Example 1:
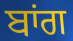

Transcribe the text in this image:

ਬਾਂਗ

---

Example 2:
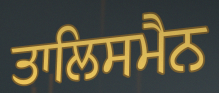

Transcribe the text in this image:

ਤਾਲਿਸਮੈਨ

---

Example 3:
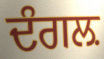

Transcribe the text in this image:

ਦੰਗਲ਼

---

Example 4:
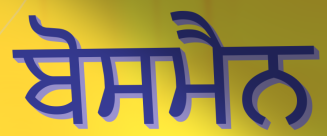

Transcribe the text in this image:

ਬੋਸਮੈਨ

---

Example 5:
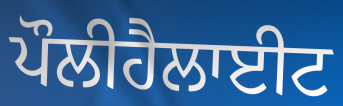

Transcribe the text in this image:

ਪੌਲੀਹੈਲਾਈਟ